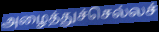
அழைத்துச்செல்லச்